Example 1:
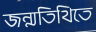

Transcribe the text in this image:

জন্মতিথিতে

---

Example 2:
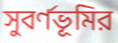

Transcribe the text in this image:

সুবর্ণভূমির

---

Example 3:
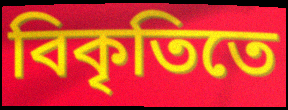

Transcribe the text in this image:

বিকৃতিতে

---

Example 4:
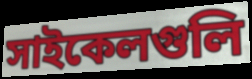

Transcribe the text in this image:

সাইকেলগুলি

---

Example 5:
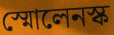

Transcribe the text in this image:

স্মোলেনস্ক